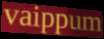
vaippum